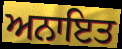
ਅਨਾਇਤ